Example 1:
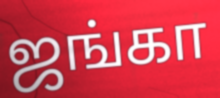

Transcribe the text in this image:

ஜங்கா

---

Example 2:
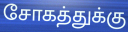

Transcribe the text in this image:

சோகத்துக்கு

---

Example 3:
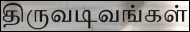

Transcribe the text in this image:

திருவடிவங்கள்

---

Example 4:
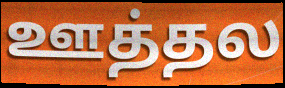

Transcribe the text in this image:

ஊத்தல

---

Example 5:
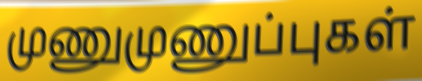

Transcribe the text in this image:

முணுமுணுப்புகள்